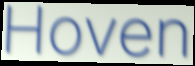
Hoven